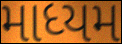
માધ્યમ